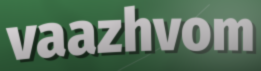
vaazhvom